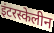
इंटरस्केलीन